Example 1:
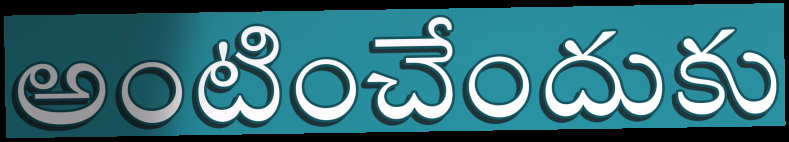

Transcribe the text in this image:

అంటించేందుకు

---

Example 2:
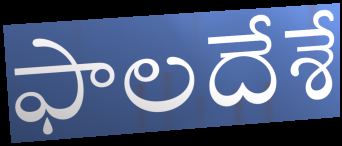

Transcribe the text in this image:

ఫాలదేశే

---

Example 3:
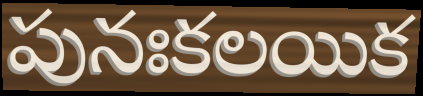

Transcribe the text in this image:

పునఃకలయిక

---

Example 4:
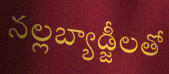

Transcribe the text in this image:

నల్లబ్యాడ్జీలతో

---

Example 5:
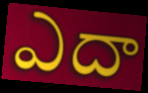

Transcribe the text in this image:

ఎదా